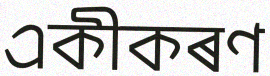
একীকৰণ